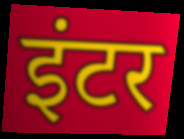
इंटर